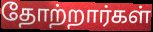
தோற்றார்கள்